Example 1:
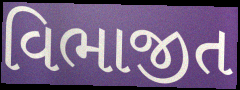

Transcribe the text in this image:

વિભાજીત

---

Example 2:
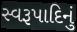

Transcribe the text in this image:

સ્વરૂપાદિનું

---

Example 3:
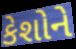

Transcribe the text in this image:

કેશોને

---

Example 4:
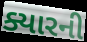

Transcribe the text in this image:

ક્યારની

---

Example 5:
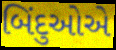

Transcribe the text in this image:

બિંદુઓએ